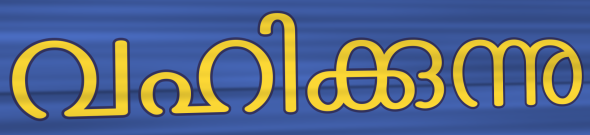
വഹിക്കുന്നു